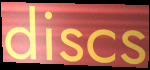
discs